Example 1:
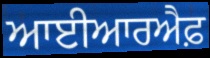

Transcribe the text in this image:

ਆਈਆਰਐਫ਼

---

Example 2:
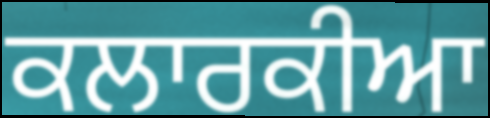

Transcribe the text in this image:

ਕਲਾਰਕੀਆ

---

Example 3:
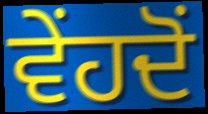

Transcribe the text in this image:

ਵੇਂਹਦੋਂ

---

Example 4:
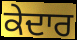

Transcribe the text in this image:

ਕੇਦਾਰ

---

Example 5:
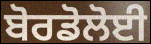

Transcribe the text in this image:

ਬੋਰਡੋਲੋਈ